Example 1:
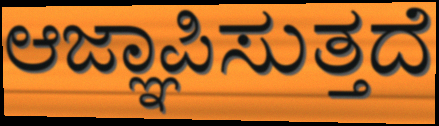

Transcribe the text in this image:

ಆಜ್ಞಾಪಿಸುತ್ತದೆ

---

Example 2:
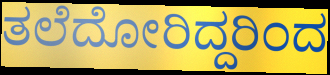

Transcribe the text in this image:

ತಲೆದೋರಿದ್ದರಿಂದ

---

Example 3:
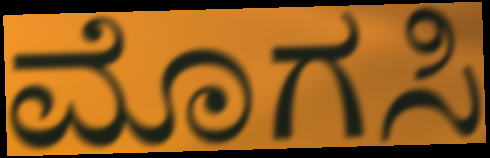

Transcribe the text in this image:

ಮೊಗಸಿ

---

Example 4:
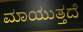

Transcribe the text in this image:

ಮಾಯುತ್ತದೆ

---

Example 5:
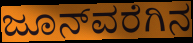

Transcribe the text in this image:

ಜೂನ್‌ವರೆಗಿನ